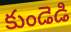
కుండెడి